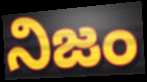
నిజం